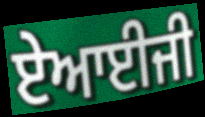
ਏਆਈਜੀ